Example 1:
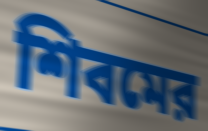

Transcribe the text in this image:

শিবমের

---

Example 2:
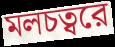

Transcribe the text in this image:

মলচত্বরে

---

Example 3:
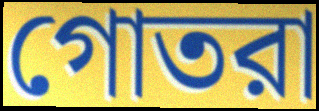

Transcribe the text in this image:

গোতরা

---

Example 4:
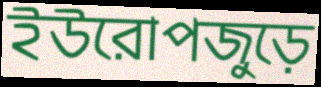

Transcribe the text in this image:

ইউরোপজুড়ে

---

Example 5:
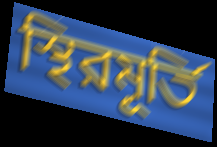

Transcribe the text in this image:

স্থিরমূর্তি